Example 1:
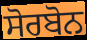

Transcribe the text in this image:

ਸੋਰਬੋਨ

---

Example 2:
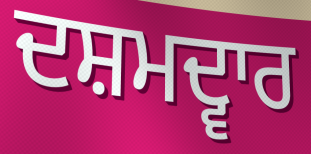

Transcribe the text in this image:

ਦਸ਼ਮਦ੍ਵਾਰ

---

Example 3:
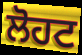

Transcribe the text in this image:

ਲੋਹਟ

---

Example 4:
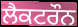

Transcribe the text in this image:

ਲੈਕਟਰੌਨ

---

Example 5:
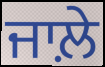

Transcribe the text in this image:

ਜਾਲ਼ੇ